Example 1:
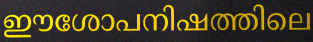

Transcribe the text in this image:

ഈശോപനിഷത്തിലെ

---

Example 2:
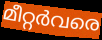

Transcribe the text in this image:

മീറ്റർവരെ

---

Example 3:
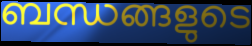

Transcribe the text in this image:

ബന്ധങ്ങളുടെ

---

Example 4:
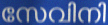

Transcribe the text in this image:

സേവിനി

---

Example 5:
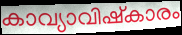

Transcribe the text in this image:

കാവ്യാവിഷ്കാരം